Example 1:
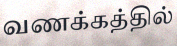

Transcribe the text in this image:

வணக்கத்தில்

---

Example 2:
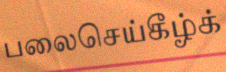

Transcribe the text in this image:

பலைசெய்கீழ்க்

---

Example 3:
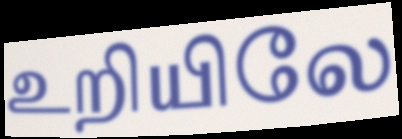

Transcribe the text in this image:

உறியிலே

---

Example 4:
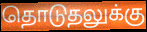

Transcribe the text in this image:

தொடுதலுக்கு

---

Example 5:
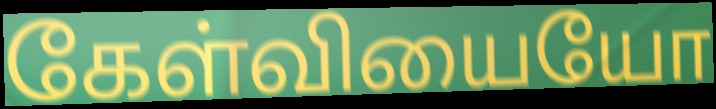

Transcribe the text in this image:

கேள்வியையோ